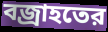
বজ্রাহতের